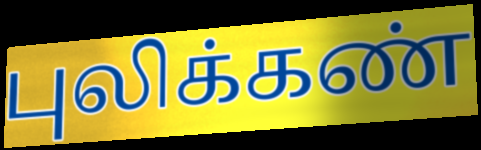
புலிக்கண்